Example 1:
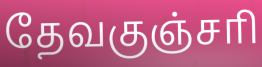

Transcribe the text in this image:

தேவகுஞ்சரி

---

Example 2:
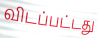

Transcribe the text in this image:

விடப்பட்டது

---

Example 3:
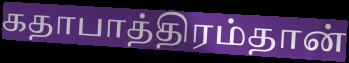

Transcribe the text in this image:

கதாபாத்திரம்தான்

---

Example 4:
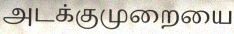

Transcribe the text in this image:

அடக்குமுறையை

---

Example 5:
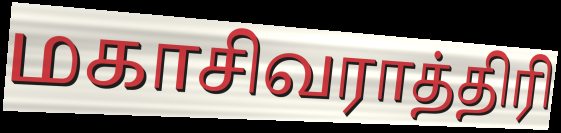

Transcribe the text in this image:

மகாசிவராத்திரி